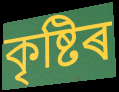
কৃষ্টিৰ